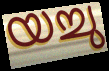
യച്ചു